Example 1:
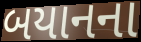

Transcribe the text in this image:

બયાનના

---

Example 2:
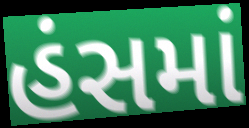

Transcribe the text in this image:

હંસમાં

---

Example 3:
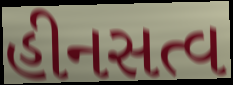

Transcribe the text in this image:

હીનસત્વ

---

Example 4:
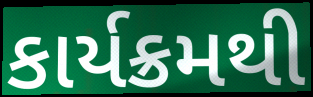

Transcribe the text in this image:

કાર્યક્રમથી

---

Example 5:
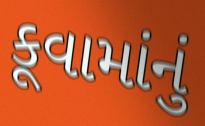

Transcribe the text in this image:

કૂવામાંનું